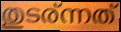
തുടര്ന്നത്